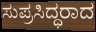
ಸುಪ್ರಸಿದ್ಧರಾದ